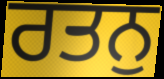
ਰਤਨੁ